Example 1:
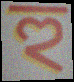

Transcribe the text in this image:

হু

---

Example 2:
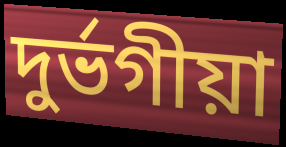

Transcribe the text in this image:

দুৰ্ভগীয়া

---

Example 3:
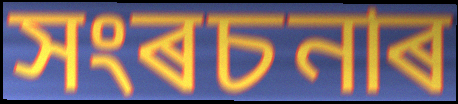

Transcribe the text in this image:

সংৰচনাৰ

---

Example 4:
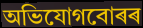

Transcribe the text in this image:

অভিযোগবোৰৰ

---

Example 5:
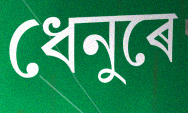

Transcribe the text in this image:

ধেনুৰে